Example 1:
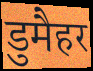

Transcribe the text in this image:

डुमैहर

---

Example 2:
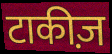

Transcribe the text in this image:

टाकीज़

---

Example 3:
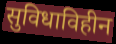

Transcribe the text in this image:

सुविधाविहीन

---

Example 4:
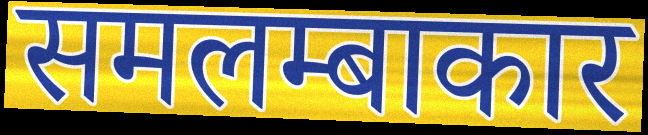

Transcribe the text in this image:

समलम्बाकार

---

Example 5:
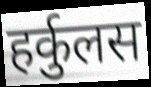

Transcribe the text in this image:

हर्कुलस